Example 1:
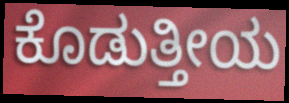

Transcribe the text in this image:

ಕೊಡುತ್ತೀಯ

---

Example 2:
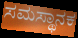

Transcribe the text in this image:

ಸಮಸ್ಥಾನಕ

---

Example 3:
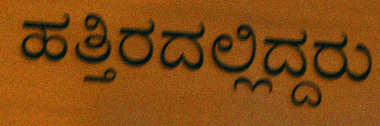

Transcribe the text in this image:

ಹತ್ತಿರದಲ್ಲಿದ್ದರು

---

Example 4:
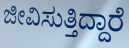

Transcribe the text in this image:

ಜೀವಿಸುತ್ತಿದ್ದಾರೆ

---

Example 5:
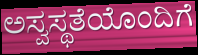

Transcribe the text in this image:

ಅಸ್ವಸ್ಥತೆಯೊಂದಿಗೆ